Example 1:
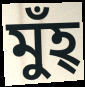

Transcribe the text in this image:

মুঁহ্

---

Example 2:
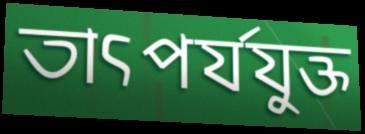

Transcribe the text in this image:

তাৎপর্যযুক্ত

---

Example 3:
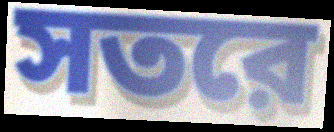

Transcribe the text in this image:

সতরে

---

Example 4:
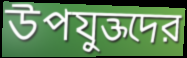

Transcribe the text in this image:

উপযুক্তদের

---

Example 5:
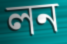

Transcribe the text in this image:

লন